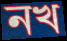
নখ